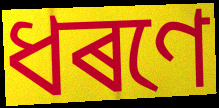
ধৰণে